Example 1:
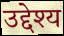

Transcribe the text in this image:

उद्देश्‍य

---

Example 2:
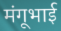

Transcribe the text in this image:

मंगूभाई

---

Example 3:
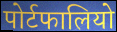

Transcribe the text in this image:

पोर्टफालियो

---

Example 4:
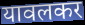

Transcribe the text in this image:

यावलकर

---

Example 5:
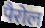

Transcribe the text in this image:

पैरोल